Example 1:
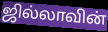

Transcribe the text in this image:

ஜில்லாவின்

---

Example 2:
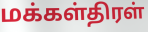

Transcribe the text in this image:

மக்கள்திரள்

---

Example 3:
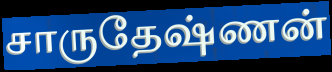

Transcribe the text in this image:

சாருதேஷ்ணன்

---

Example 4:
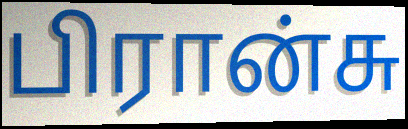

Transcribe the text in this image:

பிரான்சு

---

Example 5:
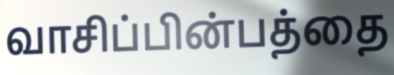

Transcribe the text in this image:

வாசிப்பின்பத்தை